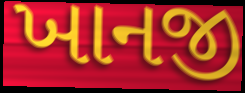
ખાનજી